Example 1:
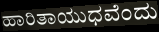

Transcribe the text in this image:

ಹಾರಿತಾಯುಧವೆಂದು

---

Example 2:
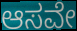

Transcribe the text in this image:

ಆಸವೇ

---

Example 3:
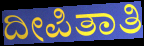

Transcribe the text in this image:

ದೀಪಿತಾತಿ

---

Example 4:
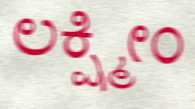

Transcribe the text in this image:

ಲಕ್ಷ್ಮೀಂ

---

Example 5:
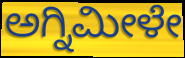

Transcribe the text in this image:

ಅಗ್ನಿಮೀಳೇ